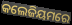
କଲେଜିୟମରେ